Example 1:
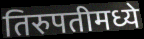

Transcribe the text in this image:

तिरुपतीमध्ये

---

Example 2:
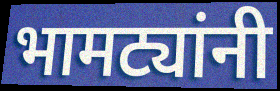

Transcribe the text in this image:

भामट्यांनी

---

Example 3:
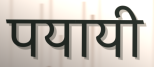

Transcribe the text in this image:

पयायी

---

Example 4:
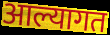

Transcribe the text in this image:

आल्यागत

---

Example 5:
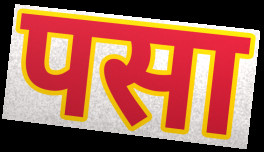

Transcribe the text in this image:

पसा